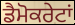
ਡੈਮੋਕਰੇਟਾਂ